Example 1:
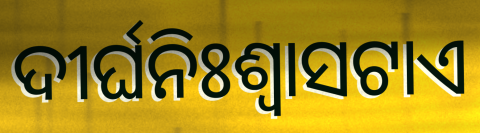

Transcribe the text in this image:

ଦୀର୍ଘନିଃଶ୍ୱାସଟାଏ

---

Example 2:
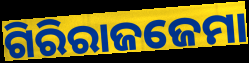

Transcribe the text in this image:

ଗିରିରାଜଜେମା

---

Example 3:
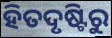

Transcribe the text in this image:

ହିତଦୃଷ୍ଟିରୁ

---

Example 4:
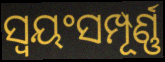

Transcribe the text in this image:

ସ୍ବୟଂସମ୍ପୂର୍ଣ୍ଣ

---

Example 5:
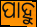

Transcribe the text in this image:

ପାହୁ